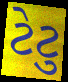
ટેટુ